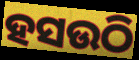
ହସଉଠି